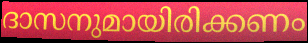
ദാസനുമായിരിക്കണം